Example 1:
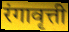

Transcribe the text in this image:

रंगावृत्ती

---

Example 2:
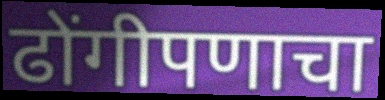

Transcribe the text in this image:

ढोंगीपणाचा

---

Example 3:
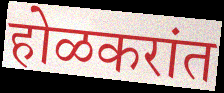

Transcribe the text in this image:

होळकरांत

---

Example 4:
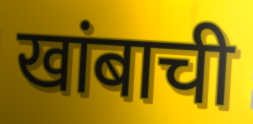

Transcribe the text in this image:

खांबाची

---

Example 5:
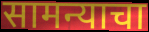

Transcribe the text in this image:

सामन्याचा